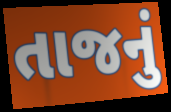
તાજનું